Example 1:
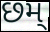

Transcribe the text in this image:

છમ્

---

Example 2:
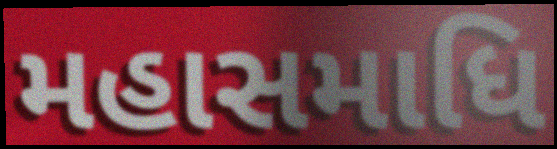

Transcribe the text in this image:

મહાસમાધિ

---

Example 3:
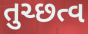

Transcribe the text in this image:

તુચ્છત્વ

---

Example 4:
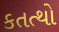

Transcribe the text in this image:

કતત્થો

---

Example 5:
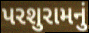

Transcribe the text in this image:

પરશુરામનું